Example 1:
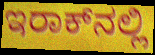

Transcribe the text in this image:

ಇರಾಕ್‍ನಲ್ಲಿ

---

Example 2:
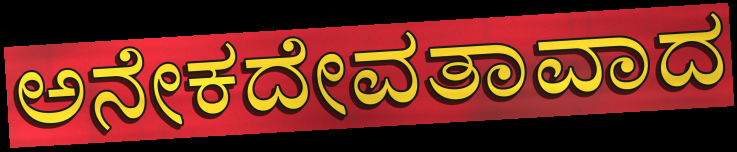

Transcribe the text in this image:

ಅನೇಕದೇವತಾವಾದ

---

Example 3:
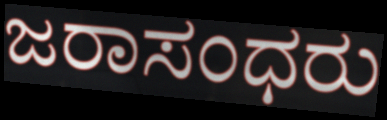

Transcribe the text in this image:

ಜರಾಸಂಧರು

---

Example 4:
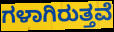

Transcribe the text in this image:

ಗಳಾಗಿರುತ್ತವೆ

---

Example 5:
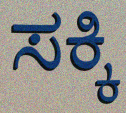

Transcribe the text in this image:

ಸಕ್ಕಿ